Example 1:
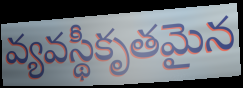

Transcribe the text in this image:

వ్యవస్థీకృతమైన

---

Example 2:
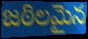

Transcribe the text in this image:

జఠిలమైన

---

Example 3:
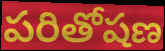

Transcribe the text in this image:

పరితోషణ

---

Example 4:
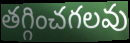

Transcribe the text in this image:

తగ్గించగలవు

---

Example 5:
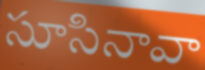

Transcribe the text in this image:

సూసినావా